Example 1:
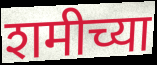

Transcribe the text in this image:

शमीच्या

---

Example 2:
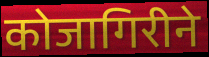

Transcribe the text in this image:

कोजागिरीने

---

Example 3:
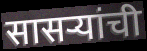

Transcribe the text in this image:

सासऱ्यांची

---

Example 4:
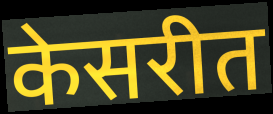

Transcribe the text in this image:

केसरीत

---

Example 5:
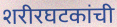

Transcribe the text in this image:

शरीरघटकांची